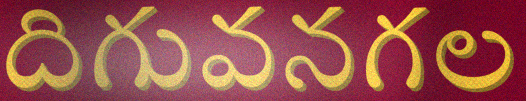
దిగువనగల